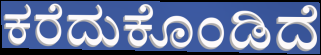
ಕರೆದುಕೊಂಡಿದೆ